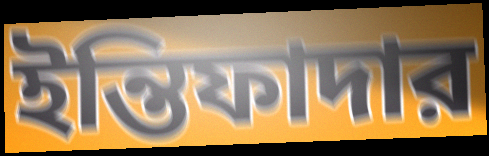
ইন্তিফাদার